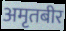
अमृतबीर